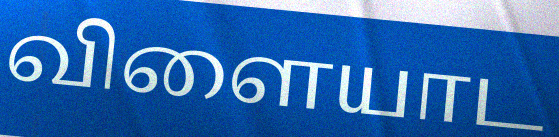
விளையாட